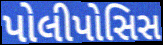
પોલીપોસિસ